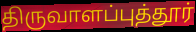
திருவாளப்புத்தூர்